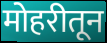
मोहरीतून